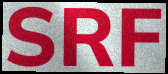
SRF